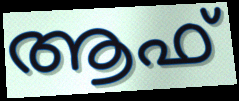
ആഫ്